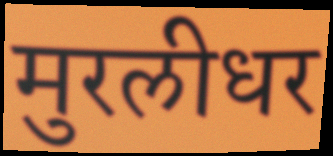
मुरलीधर